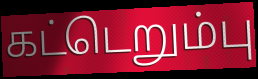
கட்டெறும்பு